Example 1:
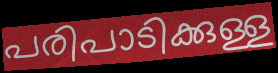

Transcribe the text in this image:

പരിപാടിക്കുള്ള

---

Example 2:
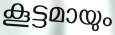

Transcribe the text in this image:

കൂട്ടമായും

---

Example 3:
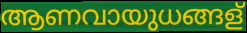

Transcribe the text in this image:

ആണവായുധങ്ങള്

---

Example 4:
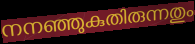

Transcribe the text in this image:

നനഞ്ഞുകുതിരുന്നതും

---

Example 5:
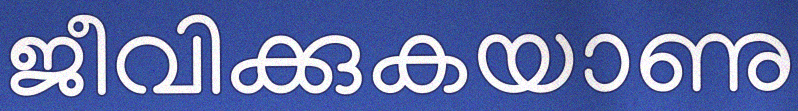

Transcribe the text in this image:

ജീവിക്കുകയാണു